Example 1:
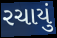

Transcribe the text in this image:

રચાયું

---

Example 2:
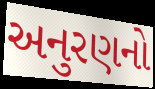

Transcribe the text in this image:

અનુરણનો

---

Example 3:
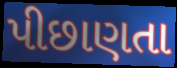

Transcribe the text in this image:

પીછાણતા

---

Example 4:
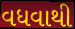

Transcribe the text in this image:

વધવાથી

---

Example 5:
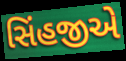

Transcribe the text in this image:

સિંહજીએ